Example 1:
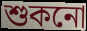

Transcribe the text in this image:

শুকনো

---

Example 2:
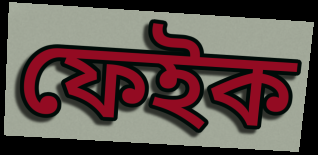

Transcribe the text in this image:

ফেইক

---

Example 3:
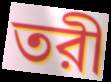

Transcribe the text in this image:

তরী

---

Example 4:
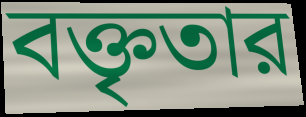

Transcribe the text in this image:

বক্তৃতার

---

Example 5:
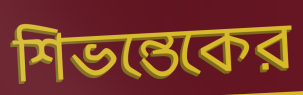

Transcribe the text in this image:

শিভন্তেকের